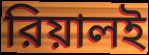
রিয়ালই